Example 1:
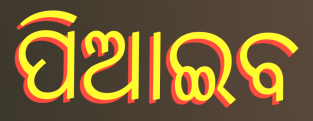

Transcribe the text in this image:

ପିଆଇବ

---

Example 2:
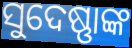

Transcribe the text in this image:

ସୁଦେଷ୍ଣାଙ୍କ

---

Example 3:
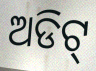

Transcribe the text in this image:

ଅଡିଟ୍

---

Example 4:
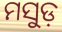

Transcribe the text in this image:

ମସୁଡ଼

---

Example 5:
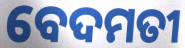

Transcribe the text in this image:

ବେଦମତୀ